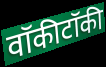
वॉकीटॉकी